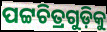
ପଟ୍ଟଚିତ୍ରଗୁଡ଼ିକୁ